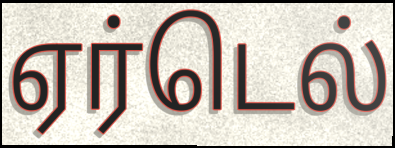
ஏர்டெல்